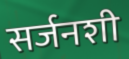
सर्जनशी